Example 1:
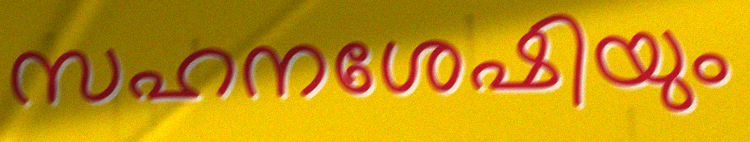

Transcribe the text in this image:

സഹനശേഷിയും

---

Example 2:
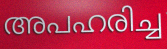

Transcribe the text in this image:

അപഹരിച്ച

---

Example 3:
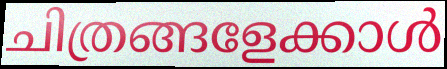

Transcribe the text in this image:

ചിത്രങ്ങളേക്കാൾ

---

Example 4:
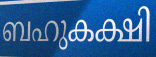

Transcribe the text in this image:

ബഹുകക്ഷി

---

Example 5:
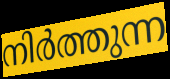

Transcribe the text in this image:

നിർത്തുന്ന